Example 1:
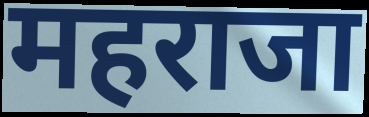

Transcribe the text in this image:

महराजा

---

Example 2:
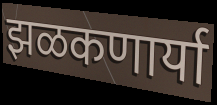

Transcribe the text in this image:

झळकणार्या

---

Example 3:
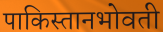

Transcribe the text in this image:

पाकिस्तानभोवती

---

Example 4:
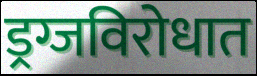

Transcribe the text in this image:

ड्रग्जविरोधात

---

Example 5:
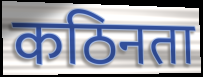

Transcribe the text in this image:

कठिनता